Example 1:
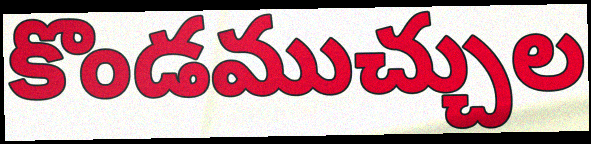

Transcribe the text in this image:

కొండముచ్చుల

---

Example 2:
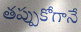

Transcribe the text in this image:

తప్పుకోగానే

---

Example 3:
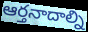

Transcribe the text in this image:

ఆర్తనాదాల్ని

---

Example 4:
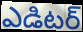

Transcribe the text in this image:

ఎడిటర్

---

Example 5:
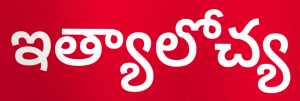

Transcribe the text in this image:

ఇత్యాలోచ్య